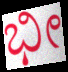
ಭೀ